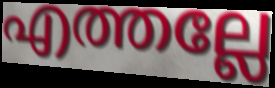
എത്തല്ലേ